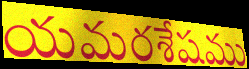
యమరశేషము